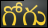
గోగు